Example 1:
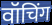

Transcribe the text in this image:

वॉचिंग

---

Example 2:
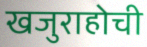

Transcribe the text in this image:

खजुराहोची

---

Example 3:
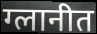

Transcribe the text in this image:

ग्लानीत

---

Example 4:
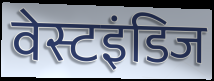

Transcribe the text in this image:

वेस्टइंडिज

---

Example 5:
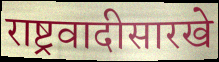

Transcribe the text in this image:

राष्ट्रवादीसारखे